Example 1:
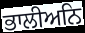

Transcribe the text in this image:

ਭਾਲੀਅਨਿ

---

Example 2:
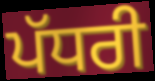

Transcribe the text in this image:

ਪੱਧਰੀ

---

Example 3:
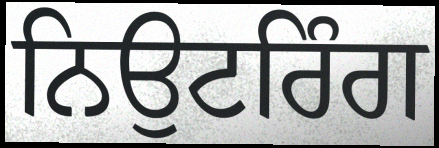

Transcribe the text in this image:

ਨਿਉਟਰਿੰਗ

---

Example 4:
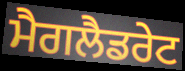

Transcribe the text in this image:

ਮੈਗਲੈਡਰੇਟ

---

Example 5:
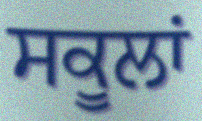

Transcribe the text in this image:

ਸਕੂਲਾਂ